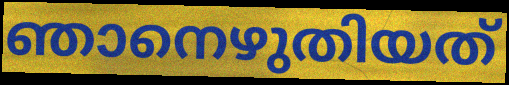
ഞാനെഴുതിയത്